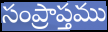
సంప్రాప్తము